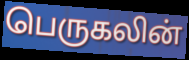
பெருகலின்